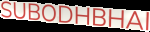
SUBODHBHAI